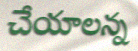
చేయాలన్న